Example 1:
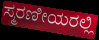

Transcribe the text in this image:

ಸ್ಮರಣೀಯರಲ್ಲಿ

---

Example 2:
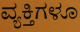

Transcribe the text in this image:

ವ್ಯಕ್ತಿಗಳೂ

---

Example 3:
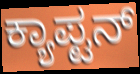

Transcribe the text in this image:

ಕ್ಯಾಪ್ಟನ್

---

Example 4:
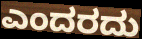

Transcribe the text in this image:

ಎಂದರದು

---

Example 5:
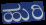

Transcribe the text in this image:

ಹುರಿ